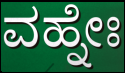
ವಹ್ನೇಃ